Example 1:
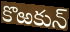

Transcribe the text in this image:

కొఱకున్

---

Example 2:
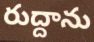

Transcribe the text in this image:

రుద్దాను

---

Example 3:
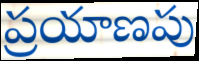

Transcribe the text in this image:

ప్రయాణపు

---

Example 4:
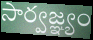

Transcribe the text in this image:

సార్వజ్ఞ్యం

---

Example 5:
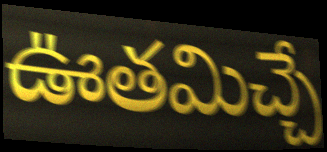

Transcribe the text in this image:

ఊతమిచ్చే